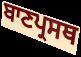
ਬਾਣਪ੍ਰਸਥ